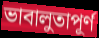
ভাবালুতাপূর্ণ